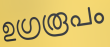
ഉഗ്രരൂപം